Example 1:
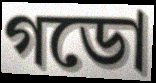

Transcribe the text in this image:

গডো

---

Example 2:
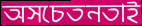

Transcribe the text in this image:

অসচেতনতাই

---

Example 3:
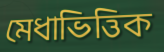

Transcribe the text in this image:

মেধাভিত্তিক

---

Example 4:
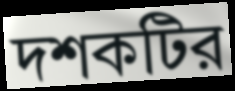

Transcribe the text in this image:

দশকটির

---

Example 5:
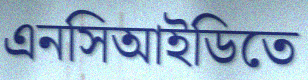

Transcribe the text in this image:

এনসিআইডিতে